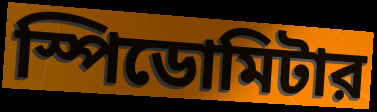
স্পিডোমিটার